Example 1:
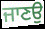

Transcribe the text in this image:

ਜਾਣਉ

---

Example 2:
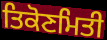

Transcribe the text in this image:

ਤਿਕੋਣਮਿਤੀ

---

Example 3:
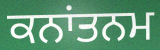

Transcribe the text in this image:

ਕਨਾਂਤਨਮ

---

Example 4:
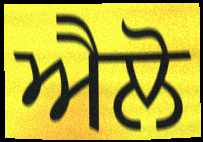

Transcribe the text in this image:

ਐਲੋ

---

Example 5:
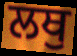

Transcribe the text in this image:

ਲਥੁ